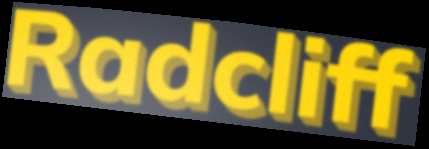
Radcliff